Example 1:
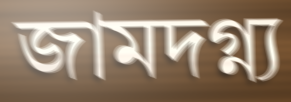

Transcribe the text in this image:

জামদগ্ন্য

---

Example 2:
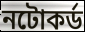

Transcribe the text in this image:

নটোকর্ড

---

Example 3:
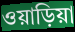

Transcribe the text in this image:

ওয়াড়িয়া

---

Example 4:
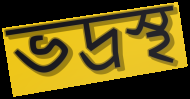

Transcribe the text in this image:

ভদ্রস্থ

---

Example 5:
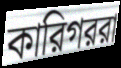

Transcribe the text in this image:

কারিগররা